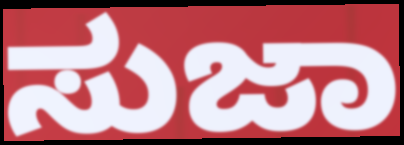
ಸುಜಾ